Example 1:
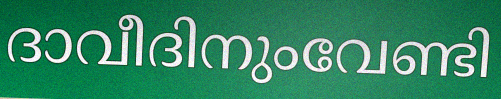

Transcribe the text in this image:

ദാവീദിനുംവേണ്ടി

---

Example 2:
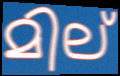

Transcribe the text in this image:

മില്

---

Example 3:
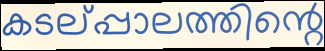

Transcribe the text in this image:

കടല്പ്പാലത്തിന്റെ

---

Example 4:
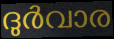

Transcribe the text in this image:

ദുർവാര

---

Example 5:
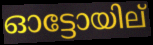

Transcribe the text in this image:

ഓട്ടോയില്